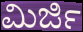
ಮಿರ್ಜಿ